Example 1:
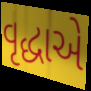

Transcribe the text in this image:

વૃદ્ધાએ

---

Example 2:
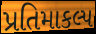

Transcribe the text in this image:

પ્રતિમાકલ્પ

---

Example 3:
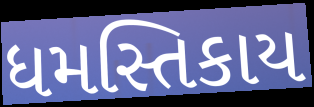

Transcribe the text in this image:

ધમસ્તિકાય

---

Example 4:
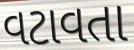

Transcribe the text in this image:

વટાવતા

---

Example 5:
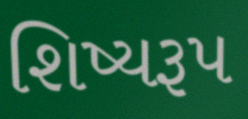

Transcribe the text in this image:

શિષ્યરૂપ